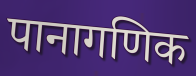
पानागणिक